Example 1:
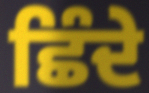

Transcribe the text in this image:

ਛਿੰਦੇ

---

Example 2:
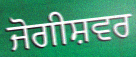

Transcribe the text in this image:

ਜੋਗੀਸ਼ਵਰ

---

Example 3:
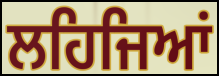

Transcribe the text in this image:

ਲਹਿਜਿਆਂ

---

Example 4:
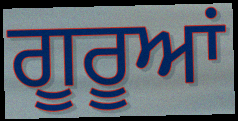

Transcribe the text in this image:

ਗੂਰੂਆਂ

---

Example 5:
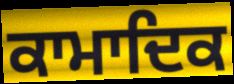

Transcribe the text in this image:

ਕਾਮਾਦਿਕ